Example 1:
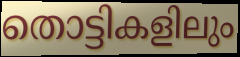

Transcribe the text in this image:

തൊട്ടികളിലും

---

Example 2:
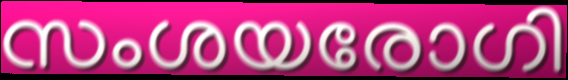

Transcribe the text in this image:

സംശയരോഗി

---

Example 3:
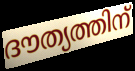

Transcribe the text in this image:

ദൗത്യത്തിന്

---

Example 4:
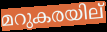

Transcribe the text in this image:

മറുകരയില്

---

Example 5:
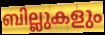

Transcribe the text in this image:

ബില്ലുകളും